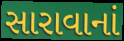
સારાવાનાં